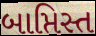
બાપ્તિસ્ત